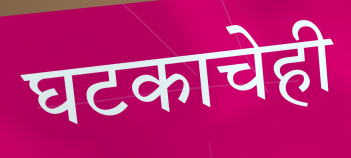
घटकाचेही